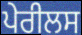
ਪੇਰੀਲਸ